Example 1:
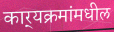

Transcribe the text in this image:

कार्यक्रमांमधील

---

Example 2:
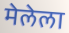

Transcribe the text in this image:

मेलेला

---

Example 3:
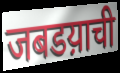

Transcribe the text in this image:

जबडय़ाची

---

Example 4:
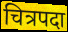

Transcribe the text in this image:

चित्रपदा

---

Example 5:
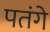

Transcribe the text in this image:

पतंगे